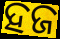
ହଜ